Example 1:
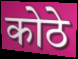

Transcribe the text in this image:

कोठे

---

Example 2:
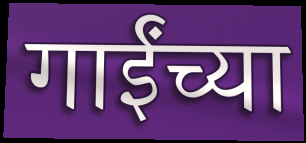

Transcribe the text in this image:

गाईंच्या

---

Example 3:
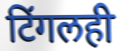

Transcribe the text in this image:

टिंगलही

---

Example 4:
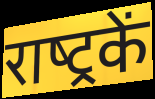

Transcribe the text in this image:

राष्ट्रकें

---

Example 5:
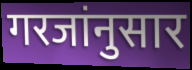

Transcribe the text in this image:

गरजांनुसार